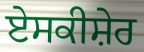
ਏਸਕੀਸ਼ੇਰ